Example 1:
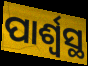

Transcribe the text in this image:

ପାର୍ଶ୍ବସ୍ଥ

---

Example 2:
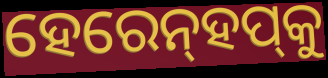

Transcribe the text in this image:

ହେରେନ୍‌ହପ୍‌କୁ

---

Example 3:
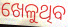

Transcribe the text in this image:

ଖେଳୁଥିବ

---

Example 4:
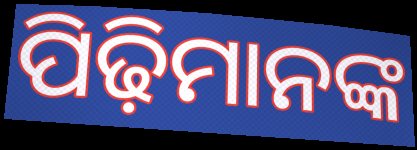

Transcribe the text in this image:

ପିଢ଼ିମାନଙ୍କ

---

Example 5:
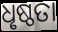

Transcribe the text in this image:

ଧୃଷ୍ଠତା